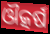
ଔତ୍କର୍ଷ